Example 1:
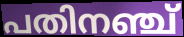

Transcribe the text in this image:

പതിനഞ്ച്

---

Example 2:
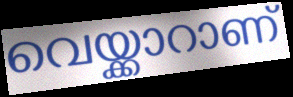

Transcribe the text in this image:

വെയ്ക്കാറാണ്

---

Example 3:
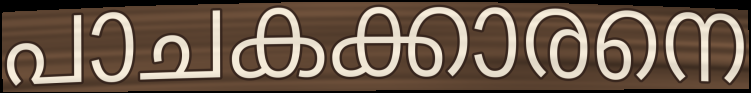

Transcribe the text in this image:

പാചകക്കാരനെ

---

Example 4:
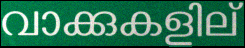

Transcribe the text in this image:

വാക്കുകളില്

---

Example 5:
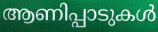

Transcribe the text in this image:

ആണിപ്പാടുകൾ